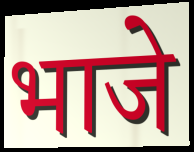
भाजे